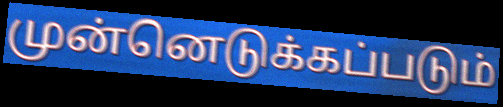
முன்னெடுக்கப்படும்